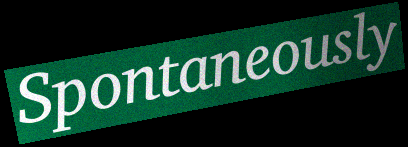
Spontaneously